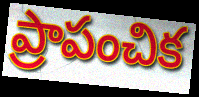
ప్రాపంచిక